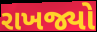
રાખજ્યો